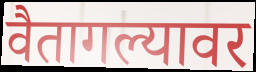
वैतागल्यावर